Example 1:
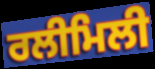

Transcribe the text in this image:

ਰਲੀਮਿਲੀ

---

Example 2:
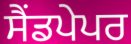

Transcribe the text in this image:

ਸੈਂਡਪੇਪਰ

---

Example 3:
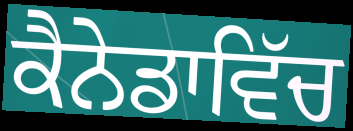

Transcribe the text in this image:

ਕੈਨੇਡਾਵਿੱਚ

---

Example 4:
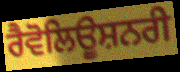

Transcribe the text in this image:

ਰੈਵੋਲਿਊਸ਼ਨਰੀ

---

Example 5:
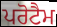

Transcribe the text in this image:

ਪਰੋਟੈਮ